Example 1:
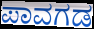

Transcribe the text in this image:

ಪಾವಗಡ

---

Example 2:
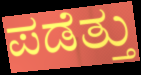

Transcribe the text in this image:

ಪಡೆತ್ತು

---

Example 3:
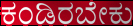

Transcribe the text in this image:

ಕಂಡಿರಬೇಕು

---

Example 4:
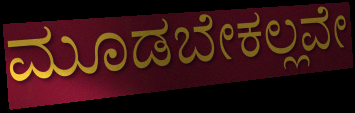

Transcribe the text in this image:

ಮೂಡಬೇಕಲ್ಲವೇ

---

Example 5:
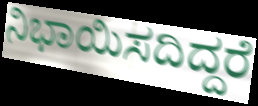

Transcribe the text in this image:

ನಿಭಾಯಿಸದಿದ್ದರೆ